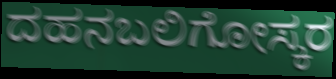
ದಹನಬಲಿಗೋಸ್ಕರ